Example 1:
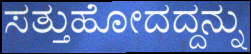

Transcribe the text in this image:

ಸತ್ತುಹೋದದ್ದನ್ನು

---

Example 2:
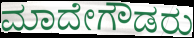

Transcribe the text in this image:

ಮಾದೇಗೌಡರು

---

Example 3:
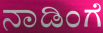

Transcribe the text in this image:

ನಾಡಿಂಗೆ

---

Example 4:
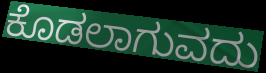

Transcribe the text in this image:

ಕೊಡಲಾಗುವದು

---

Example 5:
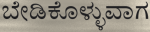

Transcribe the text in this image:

ಬೇಡಿಕೊಳ್ಳುವಾಗ